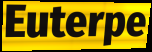
Euterpe